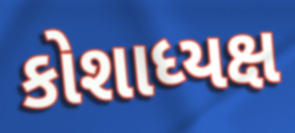
કોશાધ્યક્ષ